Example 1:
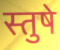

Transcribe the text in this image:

स्तुषे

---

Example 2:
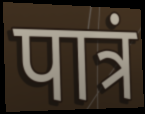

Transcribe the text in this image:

पात्रं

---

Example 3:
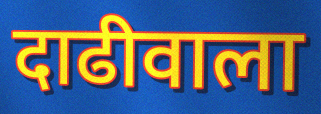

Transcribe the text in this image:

दाढीवाला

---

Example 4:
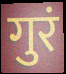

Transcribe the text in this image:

गुरं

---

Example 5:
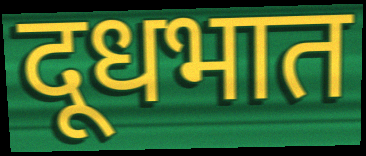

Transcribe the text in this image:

दूधभात